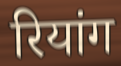
रियांग